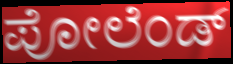
ಪೋಲೆಂಡ್